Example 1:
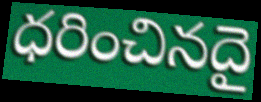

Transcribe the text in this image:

ధరించినదై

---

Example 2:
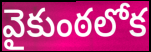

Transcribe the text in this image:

వైకుంఠలోక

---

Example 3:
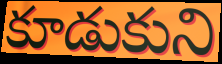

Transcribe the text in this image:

కూడుకుని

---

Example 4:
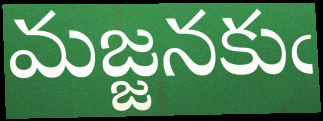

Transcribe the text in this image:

మజ్జనకుఁ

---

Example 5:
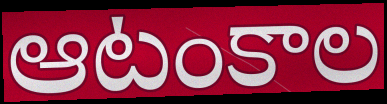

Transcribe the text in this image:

ఆటంకాల